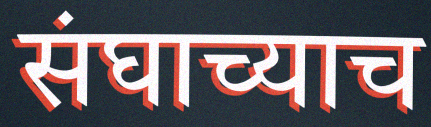
संघाच्याच